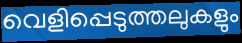
വെളിപ്പെടുത്തലുകളും